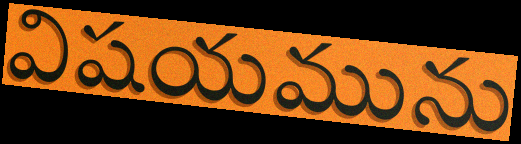
విషయమును